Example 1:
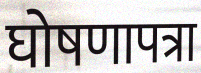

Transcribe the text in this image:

घोषणापत्रा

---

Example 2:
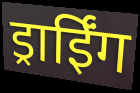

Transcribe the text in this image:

ड्राईिंग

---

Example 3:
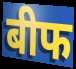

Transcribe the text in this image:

बीफ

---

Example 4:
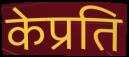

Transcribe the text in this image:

केप्रति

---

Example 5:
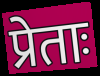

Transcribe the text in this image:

प्रेताः